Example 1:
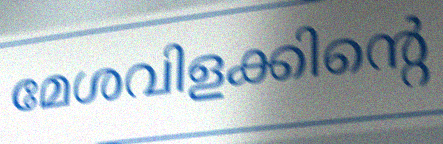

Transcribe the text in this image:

മേശവിളക്കിന്റെ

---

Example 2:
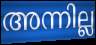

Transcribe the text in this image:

അന്നില്ല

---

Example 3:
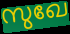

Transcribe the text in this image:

സുഖേ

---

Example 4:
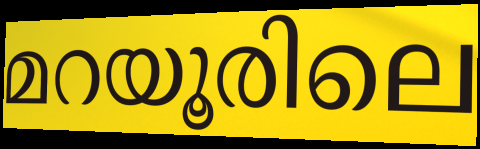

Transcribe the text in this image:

മറയൂരിലെ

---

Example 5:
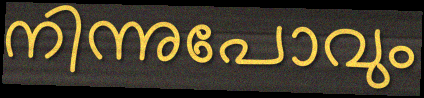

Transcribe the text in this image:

നിന്നുപോവും